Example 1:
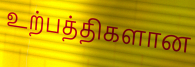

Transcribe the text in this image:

உற்பத்திகளான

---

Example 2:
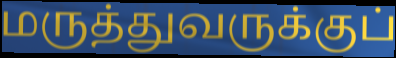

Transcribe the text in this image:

மருத்துவருக்குப்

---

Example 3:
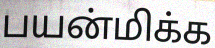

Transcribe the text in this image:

பயன்மிக்க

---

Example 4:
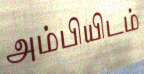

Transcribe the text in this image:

அம்பியிடம்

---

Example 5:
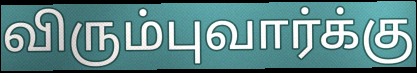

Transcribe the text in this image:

விரும்புவார்க்கு